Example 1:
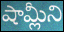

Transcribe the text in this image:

షామ్లీని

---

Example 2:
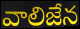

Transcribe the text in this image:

వాలిజేన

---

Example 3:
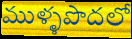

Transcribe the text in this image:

ముళ్ళపొదలో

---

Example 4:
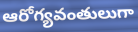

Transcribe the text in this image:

ఆరోగ్యవంతులుగా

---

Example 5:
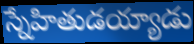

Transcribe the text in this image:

స్నేహితుడయ్యాడు